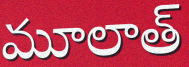
మూలాత్